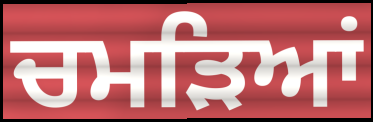
ਚਮੜਿਆਂ